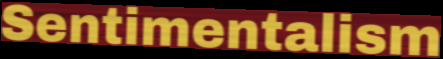
Sentimentalism